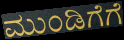
ಮುಂಡಿಗೆಗೆ